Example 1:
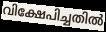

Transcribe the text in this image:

വിക്ഷേപിച്ചതിൽ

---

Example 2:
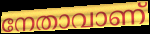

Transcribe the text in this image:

നേതാവാണ്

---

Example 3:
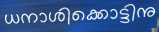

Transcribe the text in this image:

ധനാശിക്കൊട്ടിനു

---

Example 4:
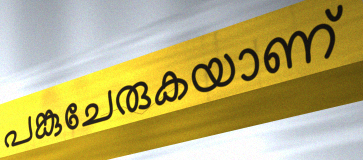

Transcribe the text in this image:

പങ്കുചേരുകയാണ്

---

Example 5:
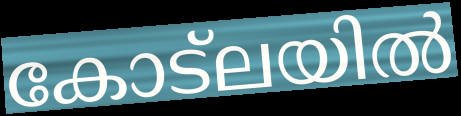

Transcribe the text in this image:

കോട്ലയിൽ